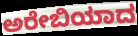
ಅರೇಬಿಯಾದ